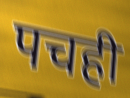
पचही